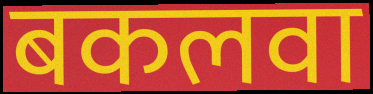
बकलवा